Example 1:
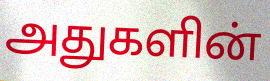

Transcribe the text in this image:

அதுகளின்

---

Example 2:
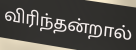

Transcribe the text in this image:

விரிந்தன்றால்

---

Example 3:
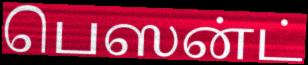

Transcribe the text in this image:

பெஸன்ட்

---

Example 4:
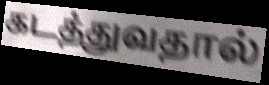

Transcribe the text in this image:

கடத்துவதால்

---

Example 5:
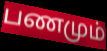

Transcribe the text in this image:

பணமும்